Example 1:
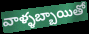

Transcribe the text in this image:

వాళ్ళబ్బాయితో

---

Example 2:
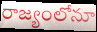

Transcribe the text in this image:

రాజ్యంలోనూ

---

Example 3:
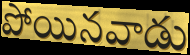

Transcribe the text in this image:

పోయినవాడు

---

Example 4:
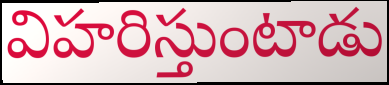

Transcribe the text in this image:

విహరిస్తుంటాడు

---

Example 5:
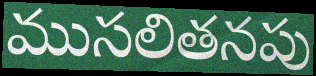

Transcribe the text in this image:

ముసలితనపు